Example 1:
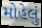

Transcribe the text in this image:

મોહેલું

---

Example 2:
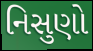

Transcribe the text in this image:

નિસુણો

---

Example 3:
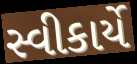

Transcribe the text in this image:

સ્વીકાર્યે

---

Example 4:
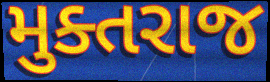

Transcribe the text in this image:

મુક્તરાજ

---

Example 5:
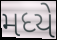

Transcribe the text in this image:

મધ્યે